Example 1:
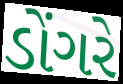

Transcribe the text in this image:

ડોંગરે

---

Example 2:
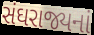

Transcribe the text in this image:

સંઘરાજ્યનાં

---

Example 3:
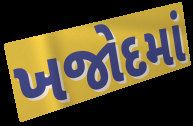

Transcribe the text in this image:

ખજોદમાં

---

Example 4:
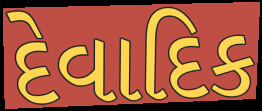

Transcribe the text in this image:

દેવાદિક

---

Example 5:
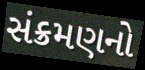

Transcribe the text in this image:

સંક્રમણનો